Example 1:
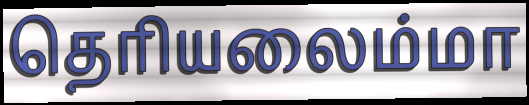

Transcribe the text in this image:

தெரியலைம்மா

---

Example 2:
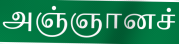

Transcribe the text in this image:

அஞ்ஞானச்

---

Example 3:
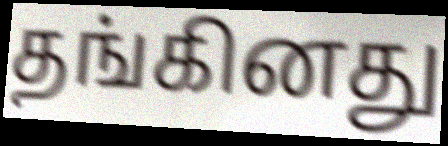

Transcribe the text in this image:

தங்கினது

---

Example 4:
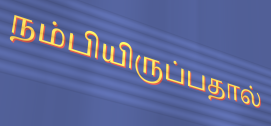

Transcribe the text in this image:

நம்பியிருப்பதால்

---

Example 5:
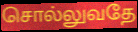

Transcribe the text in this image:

சொல்லுவதே